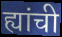
ह्यांची